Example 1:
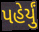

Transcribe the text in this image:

પહેર્યું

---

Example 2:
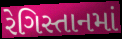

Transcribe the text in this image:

રેગિસ્તાનમાં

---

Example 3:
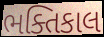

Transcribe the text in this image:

ભક્તિકાલ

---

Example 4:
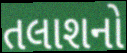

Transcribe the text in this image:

તલાશનો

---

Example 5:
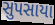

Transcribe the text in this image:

સુપસાયા